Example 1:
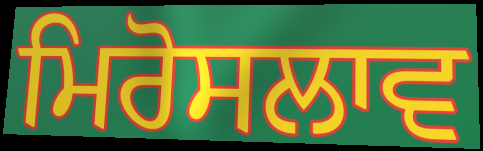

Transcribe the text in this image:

ਮਿਰੋਸਲਾਵ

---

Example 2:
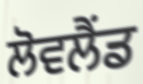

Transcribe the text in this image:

ਲੋਵਲੈਂਡ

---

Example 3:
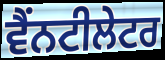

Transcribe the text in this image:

ਵੈਂਨਟੀਲੇਟਰ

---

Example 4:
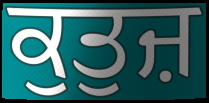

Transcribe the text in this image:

ਕੁਤੁਜ਼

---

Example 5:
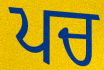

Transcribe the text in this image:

ਪਚ